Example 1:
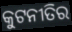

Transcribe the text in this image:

କୁଟନୀତିର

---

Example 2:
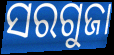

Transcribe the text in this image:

ସରଗୁଜା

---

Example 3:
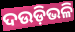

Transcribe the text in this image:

ଦଉଡ଼ିଭଳି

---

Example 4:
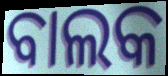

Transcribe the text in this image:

ବାଲକ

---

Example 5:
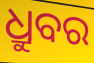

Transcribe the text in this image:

ଧ୍ରୁବର